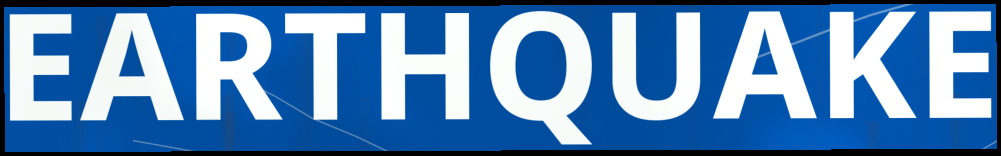
EARTHQUAKE